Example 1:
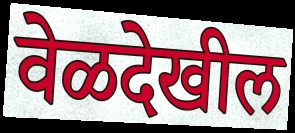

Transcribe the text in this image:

वेळदेखील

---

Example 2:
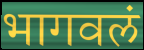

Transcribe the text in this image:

भागवलं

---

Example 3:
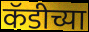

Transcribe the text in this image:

कॅडीच्या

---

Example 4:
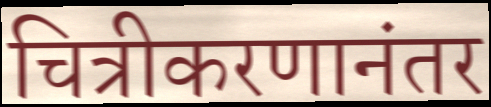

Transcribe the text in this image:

चित्रीकरणानंतर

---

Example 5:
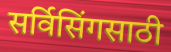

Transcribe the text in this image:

सर्विसिंगसाठी